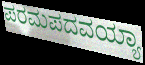
ಪರಮಪದವಯ್ಯಾ